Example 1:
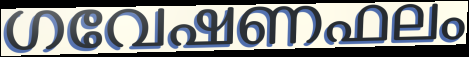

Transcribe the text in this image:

ഗവേഷണഫലം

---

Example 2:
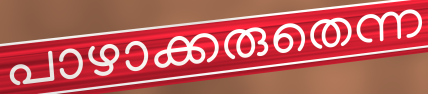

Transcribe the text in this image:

പാഴാക്കരുതെന്ന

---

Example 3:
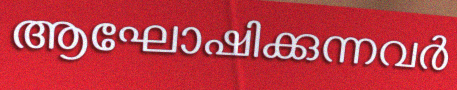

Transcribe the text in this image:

ആഘോഷിക്കുന്നവർ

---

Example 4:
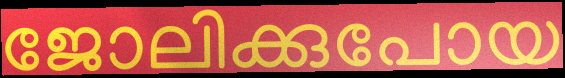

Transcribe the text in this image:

ജോലിക്കുപോയ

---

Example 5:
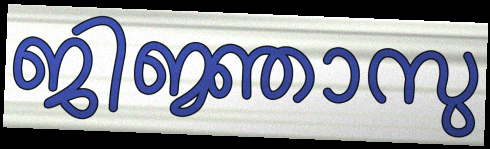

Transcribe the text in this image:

ജിജ്ഞാസു